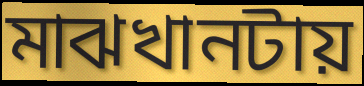
মাঝখানটায়